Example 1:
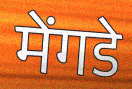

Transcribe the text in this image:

मेंगडे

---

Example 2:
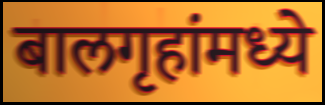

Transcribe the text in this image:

बालगृहांमध्ये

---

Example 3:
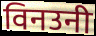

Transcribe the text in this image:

विनउनी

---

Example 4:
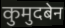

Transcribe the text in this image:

कुमुदबेन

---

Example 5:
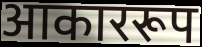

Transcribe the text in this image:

आकाररूप